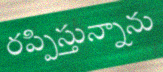
రప్పిస్తున్నాను